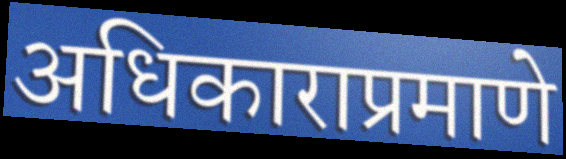
अधिकाराप्रमाणे